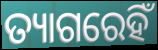
ତ୍ୟାଗରେହିଁ